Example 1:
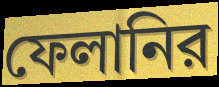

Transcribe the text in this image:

ফেলানির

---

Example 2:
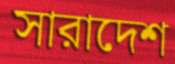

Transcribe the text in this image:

সারাদেশ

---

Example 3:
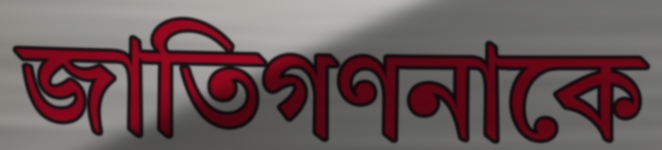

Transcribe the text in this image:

জাতিগণনাকে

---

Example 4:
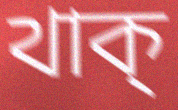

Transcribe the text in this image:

থাক্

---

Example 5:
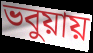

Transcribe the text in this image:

ভবুয়ায়